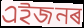
এইজনৰ